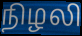
நிழலி